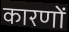
कारणों